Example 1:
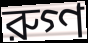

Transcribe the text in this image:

রুগ্ণ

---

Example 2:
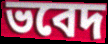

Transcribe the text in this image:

ভবেদ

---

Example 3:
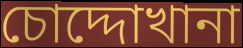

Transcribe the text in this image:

চোদ্দোখানা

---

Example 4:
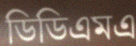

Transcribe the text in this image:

ডিডিএমএ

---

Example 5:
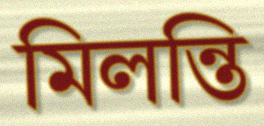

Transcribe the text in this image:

মিলন্তি